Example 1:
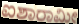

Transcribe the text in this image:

ಐಶಾರಾಮೀ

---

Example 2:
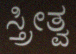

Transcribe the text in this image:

ಸ್ತ್ರೀತ್ವ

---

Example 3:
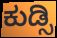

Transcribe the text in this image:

ಕುಡ್ಸಿ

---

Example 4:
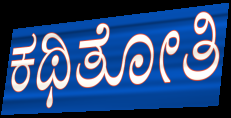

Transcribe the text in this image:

ಕಥಿತೋತಿ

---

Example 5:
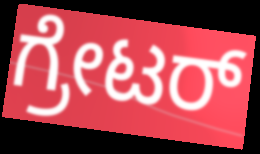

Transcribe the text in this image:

ಗ್ರೇಟರ್